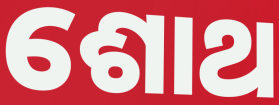
ଶୋଥ